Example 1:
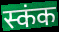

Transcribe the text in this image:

स्कंक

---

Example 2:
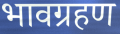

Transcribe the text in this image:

भावग्रहण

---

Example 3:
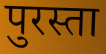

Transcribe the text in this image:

पुरस्ता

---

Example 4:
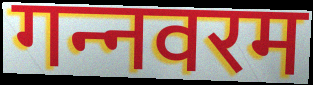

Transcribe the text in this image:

गन्नवरम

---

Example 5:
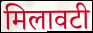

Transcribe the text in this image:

मिलावटी